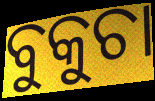
ବୁକୁଚା